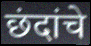
छंदांचे